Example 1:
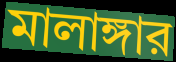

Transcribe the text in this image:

মালাঙ্গার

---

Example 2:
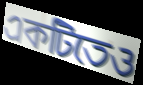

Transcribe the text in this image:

একটিতেও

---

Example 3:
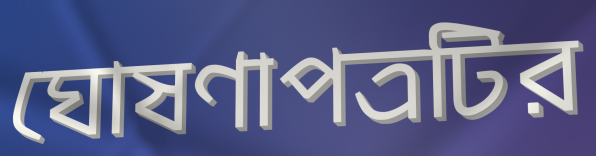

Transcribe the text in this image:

ঘোষণাপত্রটির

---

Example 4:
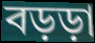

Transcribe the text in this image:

বড়ড়া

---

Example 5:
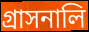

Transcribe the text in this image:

গ্রাসনালি